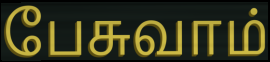
பேசுவாம்